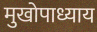
मुखोपाध्याय